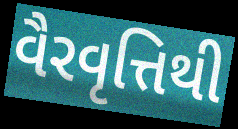
વૈરવૃત્તિથી